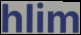
hlim